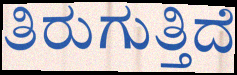
ತಿರುಗುತ್ತಿದೆ